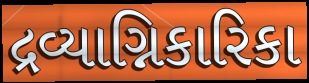
દ્રવ્યાગ્નિકારિકા